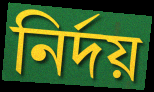
নিৰ্দয়